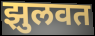
झुलवत